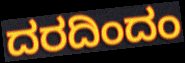
ದರದಿಂದಂ